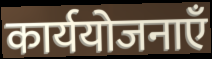
कार्ययोजनाएँ